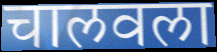
चालवला